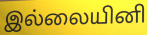
இல்லையினி